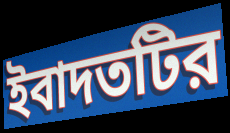
ইবাদতটির